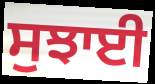
ਸੁਝਾਈ